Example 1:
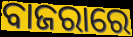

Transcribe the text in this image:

ବାଜରାରେ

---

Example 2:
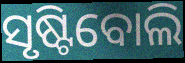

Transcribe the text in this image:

ସୃଷ୍ଟିବୋଲି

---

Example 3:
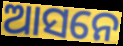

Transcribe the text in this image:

ଆସନେ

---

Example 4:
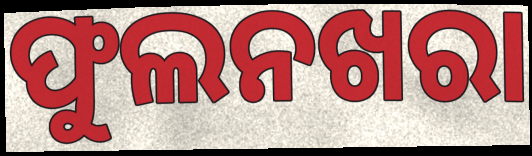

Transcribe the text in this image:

ଫୁଲନଖରା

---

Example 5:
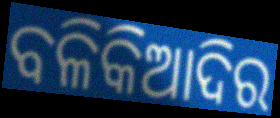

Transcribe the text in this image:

ବଳିକିଆଦିର